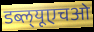
डब्ल्यूएचओ